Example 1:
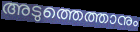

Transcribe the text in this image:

അടുത്തെത്താനും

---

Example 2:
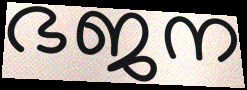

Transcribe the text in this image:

ഭജന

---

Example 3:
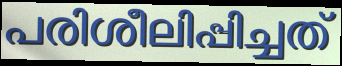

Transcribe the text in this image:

പരിശീലിപ്പിച്ചത്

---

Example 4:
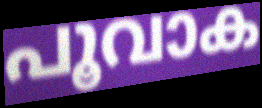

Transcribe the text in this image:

പൂവാക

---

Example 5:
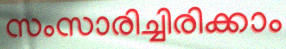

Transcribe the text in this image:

സംസാരിച്ചിരിക്കാം